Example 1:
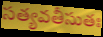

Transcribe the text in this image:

సత్యవతీసుతః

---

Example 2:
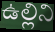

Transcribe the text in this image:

ఉల్లిని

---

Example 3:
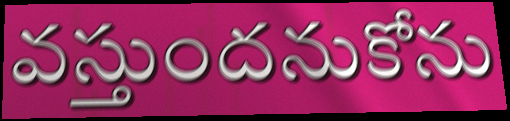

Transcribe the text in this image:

వస్తుందనుకోను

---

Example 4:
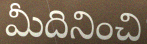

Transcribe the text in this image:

మీదినించి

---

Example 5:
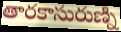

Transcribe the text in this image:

తారకాసురుణ్ని